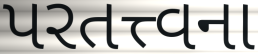
પરતત્ત્વના